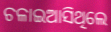
ଚଳାଇଆସିଥିଲେ